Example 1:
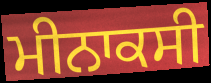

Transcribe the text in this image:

ਮੀਨਾਕਸੀ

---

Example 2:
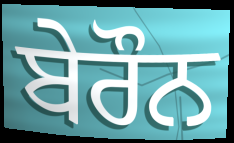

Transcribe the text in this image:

ਬੇਰੌਨ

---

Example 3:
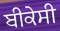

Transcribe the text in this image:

ਬੀਕੇਸੀ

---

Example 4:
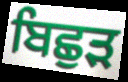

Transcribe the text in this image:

ਬਿਛੁੜ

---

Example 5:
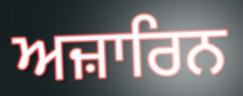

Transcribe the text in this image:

ਅਜ਼ਾਰਿਨ